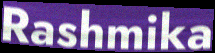
Rashmika